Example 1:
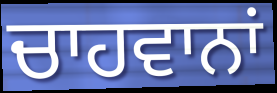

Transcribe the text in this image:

ਚਾਹਵਾਨਾਂ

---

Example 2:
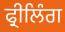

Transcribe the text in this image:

ਫ੍ਰੀਲਿੰਗ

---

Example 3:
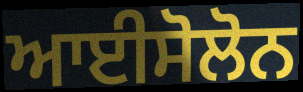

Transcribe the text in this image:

ਆਈਸੋਲੋਨ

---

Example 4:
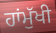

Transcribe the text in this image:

ਹਾਂਮੁੱਖੀ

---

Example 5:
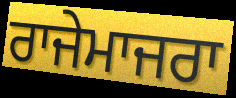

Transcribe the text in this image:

ਰਾਜੇਮਾਜਰਾ